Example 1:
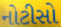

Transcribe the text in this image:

નોટીસો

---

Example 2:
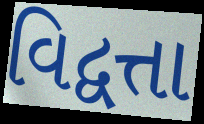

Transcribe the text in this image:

વિદ્વત્તા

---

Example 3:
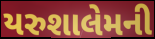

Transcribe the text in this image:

યરુશાલેમની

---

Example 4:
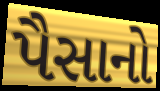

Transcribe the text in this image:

પૈસાનો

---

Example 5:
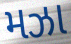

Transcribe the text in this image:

મઝા